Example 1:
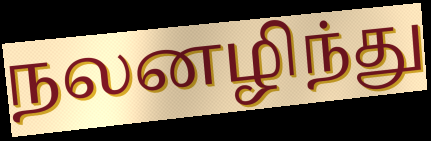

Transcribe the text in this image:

நலனழிந்து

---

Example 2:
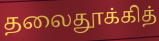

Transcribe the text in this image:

தலைதூக்கித்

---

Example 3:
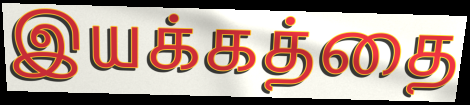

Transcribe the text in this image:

இயக்கத்தை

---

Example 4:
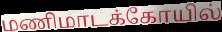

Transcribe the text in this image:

மணிமாடக்கோயில்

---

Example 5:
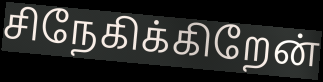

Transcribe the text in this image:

சிநேகிக்கிறேன்